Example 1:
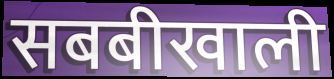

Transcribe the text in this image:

सबबीखाली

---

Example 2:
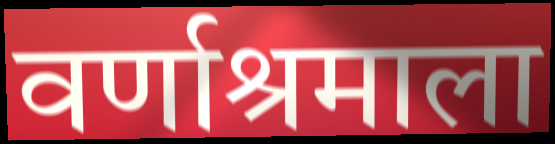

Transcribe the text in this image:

वर्णाश्रमाला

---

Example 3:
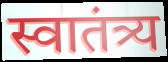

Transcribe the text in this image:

स्वातंत्र्य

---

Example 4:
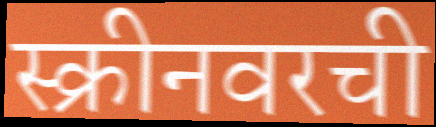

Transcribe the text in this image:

स्क्रीनवरची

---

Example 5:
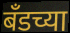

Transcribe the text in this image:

बँडच्या